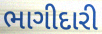
ભાગીદારી